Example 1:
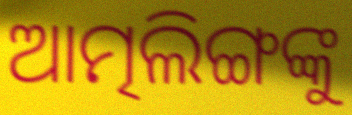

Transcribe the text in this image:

ଆତ୍ମଲିଙ୍ଗଙ୍କୁ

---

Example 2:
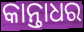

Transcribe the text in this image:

କାନ୍ତାଧର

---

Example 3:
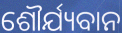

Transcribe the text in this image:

ଶୌର୍ଯ୍ୟବାନ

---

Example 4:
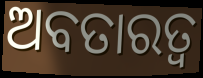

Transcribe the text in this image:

ଅବତାରତ୍ୱ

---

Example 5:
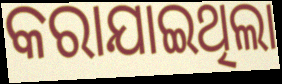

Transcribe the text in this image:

କରାଯାଇଥିଲା